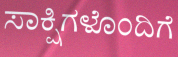
ಸಾಕ್ಷಿಗಳೊಂದಿಗೆ